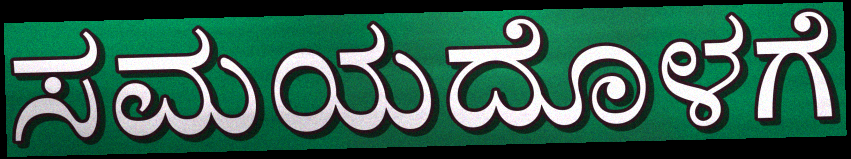
ಸಮಯದೊಳಗೆ